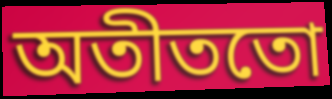
অতীততো